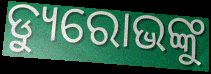
ଡ୍ୟୁରୋଭଙ୍କୁ